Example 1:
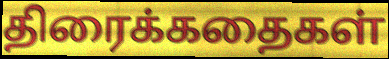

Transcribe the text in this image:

திரைக்கதைகள்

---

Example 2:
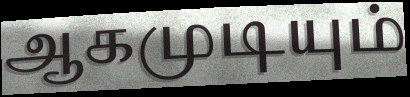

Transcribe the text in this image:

ஆகமுடியும்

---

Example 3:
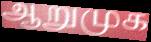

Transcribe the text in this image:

ஆறுமுக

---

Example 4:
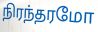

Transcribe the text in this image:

நிரந்தரமோ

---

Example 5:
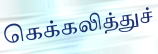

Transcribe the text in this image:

கெக்கலித்துச்